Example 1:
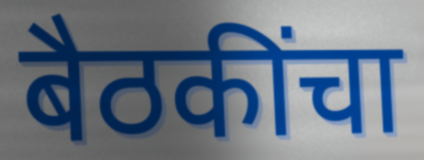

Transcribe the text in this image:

बैठकींचा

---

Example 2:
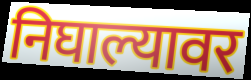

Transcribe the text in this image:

निघाल्यावर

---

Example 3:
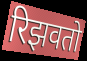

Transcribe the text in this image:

रिझवतो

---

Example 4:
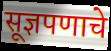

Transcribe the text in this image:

सूज्ञपणाचे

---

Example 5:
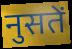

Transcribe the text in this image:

नुसतें